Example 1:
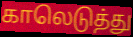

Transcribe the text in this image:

காலெடுத்து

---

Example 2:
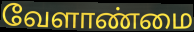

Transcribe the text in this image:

வேளாண்மை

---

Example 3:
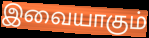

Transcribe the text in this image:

இவையாகும்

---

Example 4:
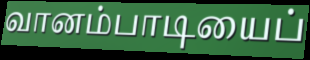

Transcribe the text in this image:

வானம்பாடியைப்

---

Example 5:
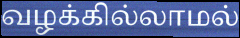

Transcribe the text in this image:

வழக்கில்லாமல்